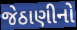
જેઠાણીનો